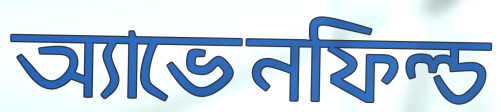
অ্যাভেনফিল্ড